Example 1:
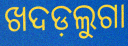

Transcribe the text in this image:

ଖଦଡ଼ଲୁଗା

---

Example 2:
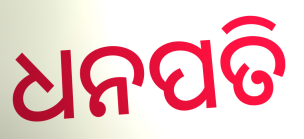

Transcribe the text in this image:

ଧନପତି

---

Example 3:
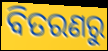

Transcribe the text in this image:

ବିତରଣରୁ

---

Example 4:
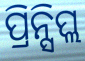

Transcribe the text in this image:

ପ୍ରିନ୍ସିପ୍ଲ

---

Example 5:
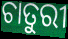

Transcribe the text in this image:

ଚାତୁରୀ